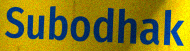
Subodhak